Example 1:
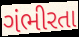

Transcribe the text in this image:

ગંભીરતા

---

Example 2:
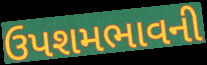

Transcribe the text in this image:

ઉપશમભાવની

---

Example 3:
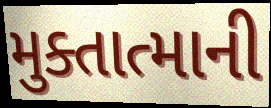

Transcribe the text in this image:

મુક્તાત્માની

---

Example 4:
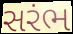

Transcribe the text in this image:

સરંભ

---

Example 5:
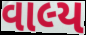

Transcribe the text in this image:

વાલ્ય